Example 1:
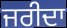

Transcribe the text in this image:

ਜਰੀਦਾ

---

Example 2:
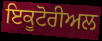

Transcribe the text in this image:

ਇਕੂਟੋਰੀਅਲ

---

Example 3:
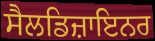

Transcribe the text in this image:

ਸੈਲਡਿਜ਼ਾਇਨਰ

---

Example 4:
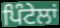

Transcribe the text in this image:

ਪਿੰਟੇਲਾਂ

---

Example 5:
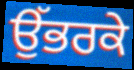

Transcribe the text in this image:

ਉੱਭਰਕੇ